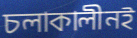
চলাকালীনই